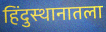
हिंदुस्थानातला